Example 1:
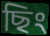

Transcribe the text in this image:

ছিং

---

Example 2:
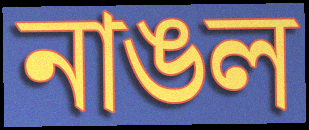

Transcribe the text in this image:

নাঙল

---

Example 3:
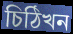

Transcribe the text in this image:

চিঠিখন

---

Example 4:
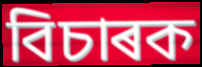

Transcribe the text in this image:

বিচাৰক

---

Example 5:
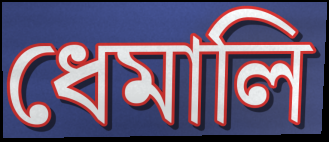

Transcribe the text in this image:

ধেমালি